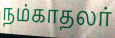
நம்காதலர்